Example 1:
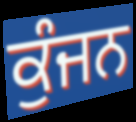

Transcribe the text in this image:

ਕੁੰਜਨ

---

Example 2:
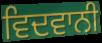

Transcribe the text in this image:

ਵਿਦਵਾਨੀ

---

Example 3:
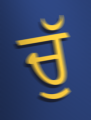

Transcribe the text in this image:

ਚੁੱ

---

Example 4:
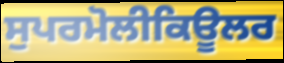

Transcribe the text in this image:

ਸੁਪਰਮੋਲੀਕਿਊਲਰ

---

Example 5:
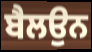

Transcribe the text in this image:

ਬੈਲਉਨ